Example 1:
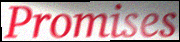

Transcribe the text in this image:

Promises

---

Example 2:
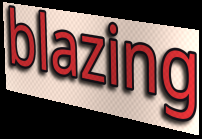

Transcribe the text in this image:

blazing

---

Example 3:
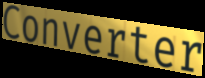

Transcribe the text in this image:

Converter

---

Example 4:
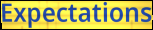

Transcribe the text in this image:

Expectations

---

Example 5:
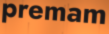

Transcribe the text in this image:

premam